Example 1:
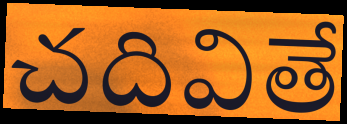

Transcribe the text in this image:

చదివితే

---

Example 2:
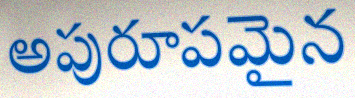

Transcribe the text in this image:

అపురూపమైన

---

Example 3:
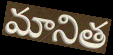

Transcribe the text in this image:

మానిత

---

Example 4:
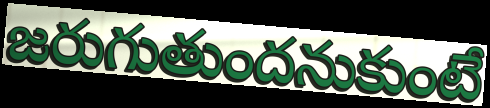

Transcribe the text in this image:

జరుగుతుందనుకుంటే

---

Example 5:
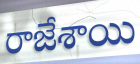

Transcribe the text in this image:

రాజేశాయి